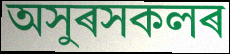
অসুৰসকলৰ